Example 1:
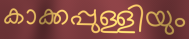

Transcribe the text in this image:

കാക്കപ്പുള്ളിയും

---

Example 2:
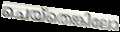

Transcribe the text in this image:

ചെയ്തെങ്കിലോ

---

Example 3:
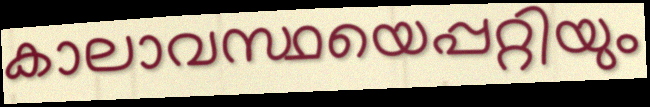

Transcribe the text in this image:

കാലാവസ്ഥയെപ്പറ്റിയും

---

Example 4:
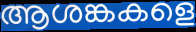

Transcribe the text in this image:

ആശങ്കകളെ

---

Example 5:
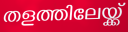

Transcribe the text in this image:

തളത്തിലേയ്ക്ക്